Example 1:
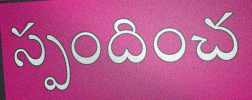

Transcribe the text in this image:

స్పందించ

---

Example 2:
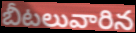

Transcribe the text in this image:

బీటలువారిన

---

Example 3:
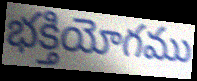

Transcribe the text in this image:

భక్తియోగము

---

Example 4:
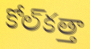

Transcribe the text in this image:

కోల్‌కత్తా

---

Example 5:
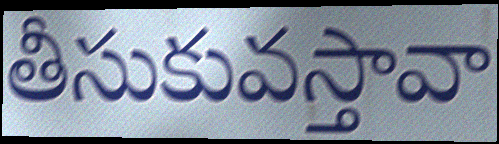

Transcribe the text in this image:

తీసుకువస్తావా